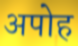
अपोह